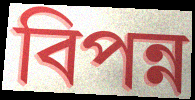
বিপন্ন